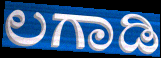
ಲಗಾಡಿ